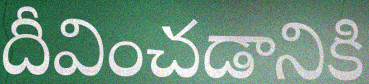
దీవించడానికి